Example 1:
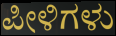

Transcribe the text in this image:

ಪೀಳಿಗಳು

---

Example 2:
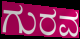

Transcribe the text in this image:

ಗುರವ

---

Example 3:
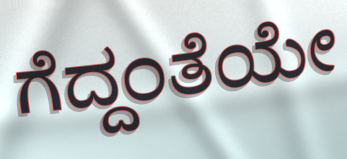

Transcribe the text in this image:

ಗೆದ್ದಂತೆಯೇ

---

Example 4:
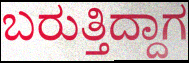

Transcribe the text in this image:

ಬರುತ್ತಿದ್ದಾಗ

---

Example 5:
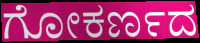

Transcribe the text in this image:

ಗೋಕರ್ಣದ